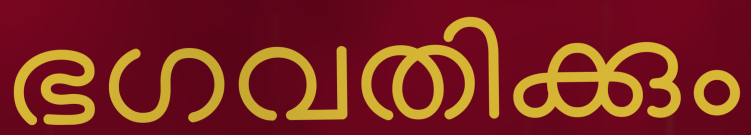
ഭഗവതിക്കും